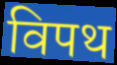
विपथ